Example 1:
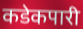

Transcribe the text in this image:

कडेकपारी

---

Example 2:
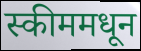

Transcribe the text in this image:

स्कीममधून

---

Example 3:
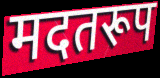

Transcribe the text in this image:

मदतरूप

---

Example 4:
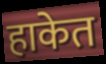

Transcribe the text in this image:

हाकेत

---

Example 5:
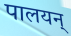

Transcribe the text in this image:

पालयन्